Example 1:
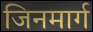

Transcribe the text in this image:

जिनमार्ग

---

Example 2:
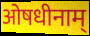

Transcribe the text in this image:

ओषधीनाम्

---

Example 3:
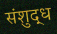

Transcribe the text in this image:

संशुद्ध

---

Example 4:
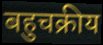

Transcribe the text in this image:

बहुचक्रीय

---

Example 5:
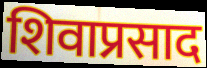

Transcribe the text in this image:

शिवाप्रसाद